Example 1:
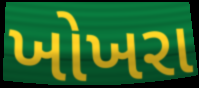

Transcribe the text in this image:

ખોખરા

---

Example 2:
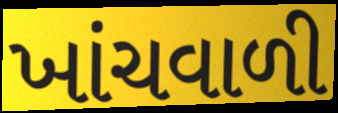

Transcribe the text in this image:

ખાંચવાળી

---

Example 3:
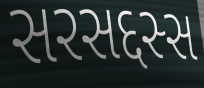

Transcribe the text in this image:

સરસદ્દસ્સ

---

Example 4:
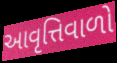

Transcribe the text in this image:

આવૃત્તિવાળો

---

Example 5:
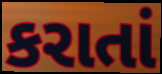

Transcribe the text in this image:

કરાતાં